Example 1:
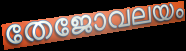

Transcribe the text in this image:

തേജോവലയം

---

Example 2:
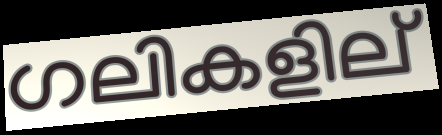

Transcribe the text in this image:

ഗലികളില്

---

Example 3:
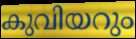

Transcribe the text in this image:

കുവിയറും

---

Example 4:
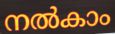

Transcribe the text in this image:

നൽകാം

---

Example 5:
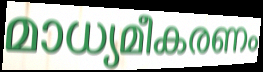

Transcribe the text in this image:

മാധ്യമീകരണം